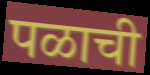
पळाची